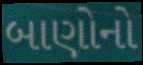
બાણોનો